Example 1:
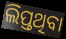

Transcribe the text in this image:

ଲିପ୍ତଥିବା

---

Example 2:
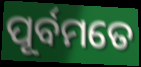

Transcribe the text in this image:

ପୂର୍ବମତେ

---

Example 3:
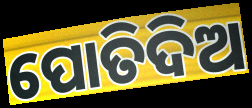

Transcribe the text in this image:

ପୋତିଦିଅ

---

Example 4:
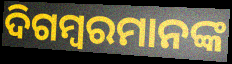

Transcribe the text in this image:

ଦିଗମ୍ବରମାନଙ୍କ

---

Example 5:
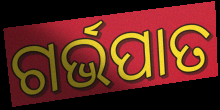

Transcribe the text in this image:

ଗର୍ଭପାତ